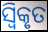
ସ୍ୱିକୃତ